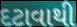
દટાવાથી